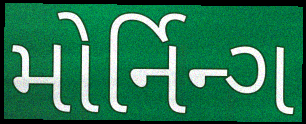
મોર્નિન્ગ